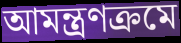
আমন্ত্ৰণক্ৰমে